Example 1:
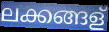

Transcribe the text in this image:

ലക്കങ്ങള്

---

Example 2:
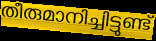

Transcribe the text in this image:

തീരുമാനിച്ചിട്ടുണ്ട്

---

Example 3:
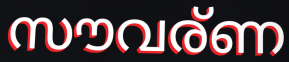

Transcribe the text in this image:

സൗവര്ണ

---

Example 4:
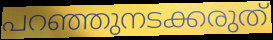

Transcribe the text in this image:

പറഞ്ഞുനടക്കരുത്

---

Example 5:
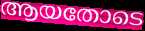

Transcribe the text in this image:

ആയതോടെ